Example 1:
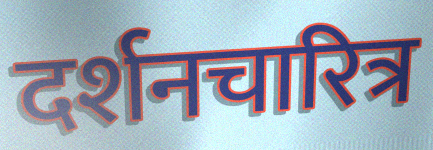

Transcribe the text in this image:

दर्शनचारित्र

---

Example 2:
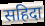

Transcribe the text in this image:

सहिदा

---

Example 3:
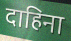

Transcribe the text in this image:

दाहिना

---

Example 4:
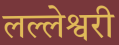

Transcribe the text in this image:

लल्लेश्वरी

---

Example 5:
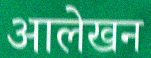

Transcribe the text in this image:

आलेखन